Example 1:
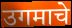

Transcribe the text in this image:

उगमाचे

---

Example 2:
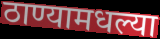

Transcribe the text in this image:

ठाण्यामधल्या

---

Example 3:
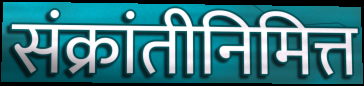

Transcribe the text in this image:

संक्रांतीनिमित्त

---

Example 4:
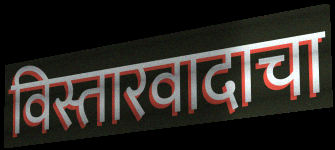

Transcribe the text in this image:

विस्तारवादाचा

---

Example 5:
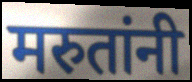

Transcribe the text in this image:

मरुतांनी